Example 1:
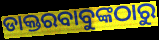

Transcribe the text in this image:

ଡାକ୍ତରବାବୁଙ୍କଠାରୁ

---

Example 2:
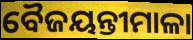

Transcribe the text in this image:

ବୈଜୟନ୍ତୀମାଳା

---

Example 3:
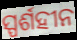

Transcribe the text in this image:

ସ୍ପର୍ଶହୀନ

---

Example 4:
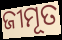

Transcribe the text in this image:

ଜୀମୂତ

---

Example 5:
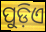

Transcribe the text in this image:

ପୁଡ଼ିଏ